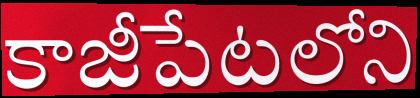
కాజీపేటలోని